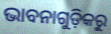
ଭାବନାଗୁଡ଼ିକରୁ